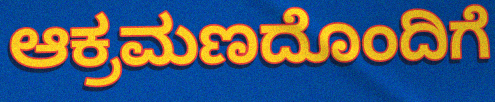
ಆಕ್ರಮಣದೊಂದಿಗೆ